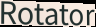
Rotator